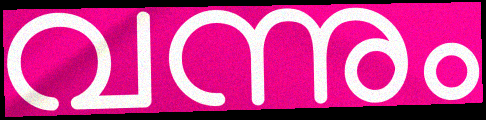
വന്നും